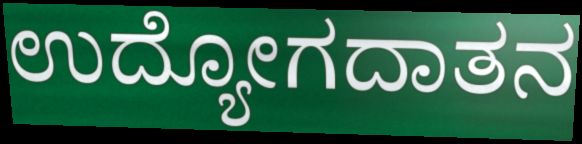
ಉದ್ಯೋಗದಾತನ